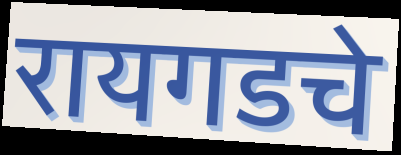
रायगडचे